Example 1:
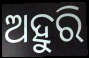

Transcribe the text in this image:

ଅହୁରି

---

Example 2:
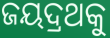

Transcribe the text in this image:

ଜୟଦ୍ରଥକୁ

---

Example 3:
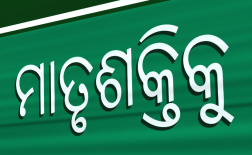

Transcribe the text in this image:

ମାତୃଶକ୍ତିକୁ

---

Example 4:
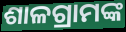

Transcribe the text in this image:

ଶାଳଗ୍ରାମଙ୍କ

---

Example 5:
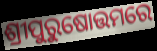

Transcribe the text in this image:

ଶ୍ରୀପୁରୁଷୋତ୍ତମରେ